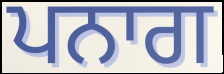
ਪਨਾਗ